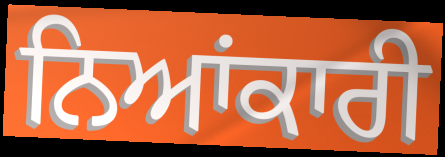
ਨਿਆਂਕਾਰੀ